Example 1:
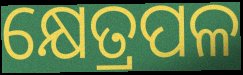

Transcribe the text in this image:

କ୍ଷେତ୍ରପଳ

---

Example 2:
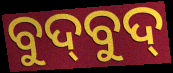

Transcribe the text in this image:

ବୁଦ୍‍ବୁଦ୍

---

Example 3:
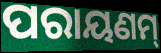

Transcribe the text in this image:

ପରାୟଣମ୍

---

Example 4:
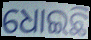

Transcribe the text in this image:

ଧୋଇଛି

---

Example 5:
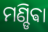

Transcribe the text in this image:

ମଣ୍ଡିଵା